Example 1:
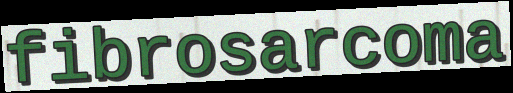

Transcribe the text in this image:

fibrosarcoma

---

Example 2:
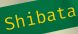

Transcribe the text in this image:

Shibata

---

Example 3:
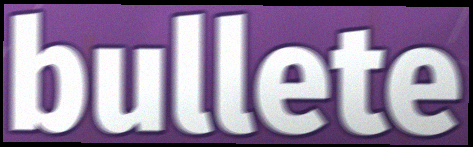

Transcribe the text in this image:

bullete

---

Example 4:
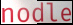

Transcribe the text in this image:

nodle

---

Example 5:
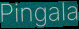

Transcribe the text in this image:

Pingala